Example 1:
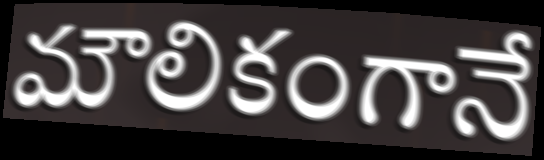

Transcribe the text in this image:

మౌలికంగానే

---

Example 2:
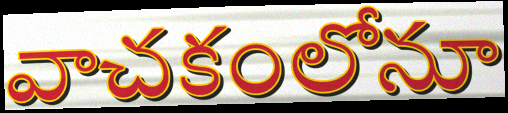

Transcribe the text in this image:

వాచకంలోనూ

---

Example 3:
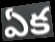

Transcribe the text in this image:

ఏక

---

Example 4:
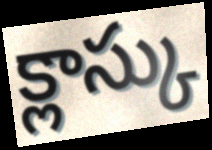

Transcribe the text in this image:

క్లాస్కు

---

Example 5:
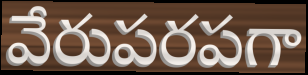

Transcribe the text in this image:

వేరుపరపగా